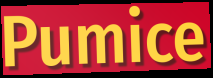
Pumice